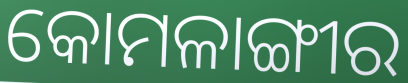
କୋମଳାଙ୍ଗୀର